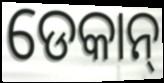
ଡେକାନ୍